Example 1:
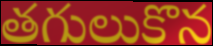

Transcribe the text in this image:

తగులుకొన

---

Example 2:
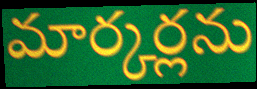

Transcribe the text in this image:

మార్కర్లను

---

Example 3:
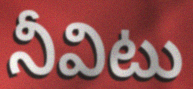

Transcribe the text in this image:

నీవిటు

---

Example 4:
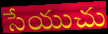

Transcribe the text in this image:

సేయుచు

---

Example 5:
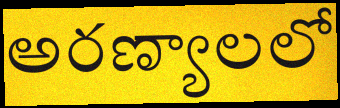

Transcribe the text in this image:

అరణ్యాలలో